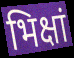
भिक्षां